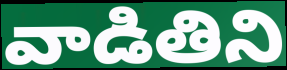
వాడితిని